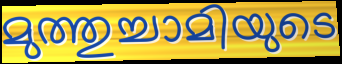
മുത്തുച്ചാമിയുടെ